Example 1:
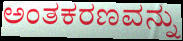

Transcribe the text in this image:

ಅಂತಕರಣವನ್ನು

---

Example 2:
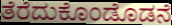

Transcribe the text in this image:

ತೆರೆದುಕೊಂಡೊಡನೆ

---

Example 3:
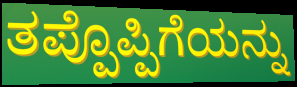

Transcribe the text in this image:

ತಪ್ಪೊಪ್ಪಿಗೆಯನ್ನು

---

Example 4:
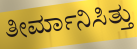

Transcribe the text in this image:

ತೀರ್ಮಾನಿಸಿತ್ತು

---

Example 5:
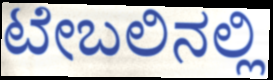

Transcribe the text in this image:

ಟೇಬಲಿನಲ್ಲಿ